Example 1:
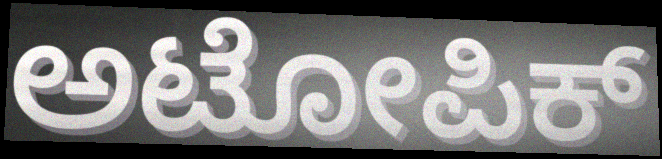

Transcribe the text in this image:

ಅಟೋಪಿಕ್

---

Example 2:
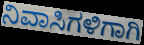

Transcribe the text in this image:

ನಿವಾಸಿಗಳಿಗಾಗಿ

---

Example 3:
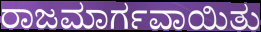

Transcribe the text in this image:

ರಾಜಮಾರ್ಗವಾಯಿತು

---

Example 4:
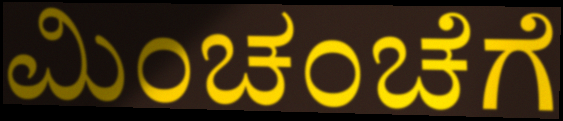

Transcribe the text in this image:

ಮಿಂಚಂಚೆಗೆ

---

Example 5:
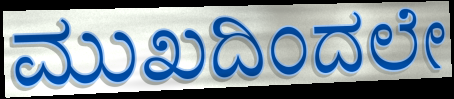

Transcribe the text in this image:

ಮುಖದಿಂದಲೇ